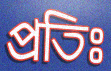
প্রতিঃ